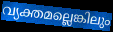
വ്യക്തമല്ലെങ്കിലും